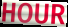
HOUR